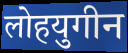
लोहयुगीन